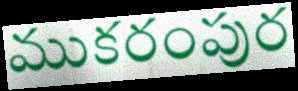
ముకరంపుర